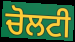
ਚੋਲਟੀ